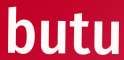
butu